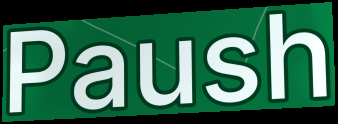
Paush